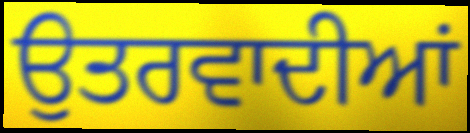
ਉਤਰਵਾਦੀਆਂ